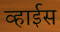
व्हाईस